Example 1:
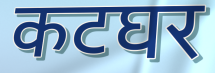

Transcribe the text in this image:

कटघर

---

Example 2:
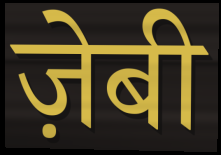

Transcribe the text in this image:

ज़ेबी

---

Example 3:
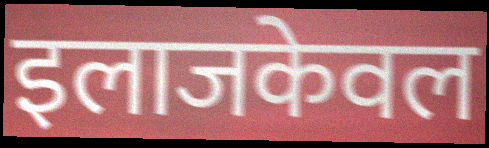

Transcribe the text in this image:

इलाजकेवल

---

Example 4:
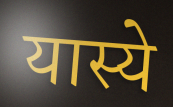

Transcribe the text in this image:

यास्ये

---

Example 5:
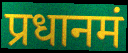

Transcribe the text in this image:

प्रधानमं